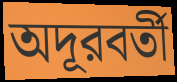
অদূরবর্তী